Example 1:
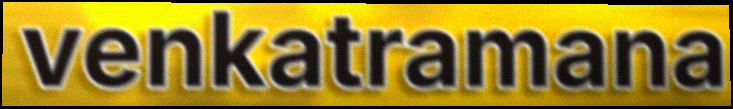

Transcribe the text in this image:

venkatramana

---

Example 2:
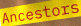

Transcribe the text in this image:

Ancestors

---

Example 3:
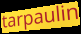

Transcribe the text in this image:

tarpaulin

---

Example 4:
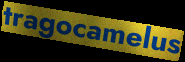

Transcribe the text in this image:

tragocamelus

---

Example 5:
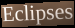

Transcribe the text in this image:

Eclipses